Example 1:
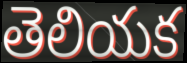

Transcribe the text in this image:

తెలియక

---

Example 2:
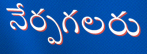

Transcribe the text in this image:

నేర్పగలరు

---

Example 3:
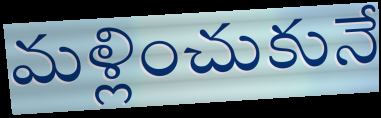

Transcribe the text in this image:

మళ్లించుకునే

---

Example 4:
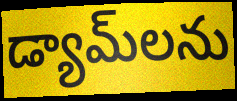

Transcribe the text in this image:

డ్యామ్‌లను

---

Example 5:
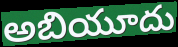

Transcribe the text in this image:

అబియూదు